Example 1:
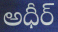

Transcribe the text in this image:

అధీర్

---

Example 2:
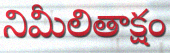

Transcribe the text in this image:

నిమీలితాక్షం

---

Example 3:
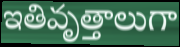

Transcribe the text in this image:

ఇతివృత్తాలుగా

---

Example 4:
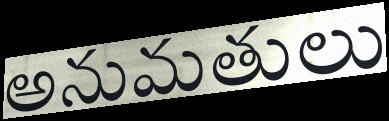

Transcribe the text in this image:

అనుమతులు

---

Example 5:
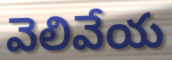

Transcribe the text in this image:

వెలివేయ